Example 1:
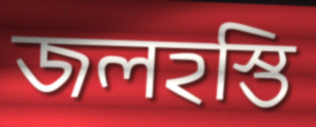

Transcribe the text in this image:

জলহস্তি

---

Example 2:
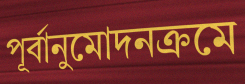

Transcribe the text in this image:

পূর্বানুমোদনক্রমে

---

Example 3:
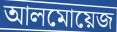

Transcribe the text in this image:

আলমোয়েজ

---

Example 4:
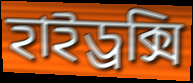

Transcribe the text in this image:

হাইড্রক্সি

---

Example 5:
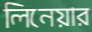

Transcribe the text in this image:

লিনেয়ার